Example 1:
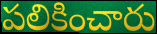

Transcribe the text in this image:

పలికించారు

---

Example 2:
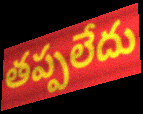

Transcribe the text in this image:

తప్పలేదు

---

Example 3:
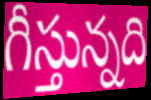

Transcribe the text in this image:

గీస్తున్నది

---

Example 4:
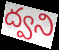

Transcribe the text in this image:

ద్వని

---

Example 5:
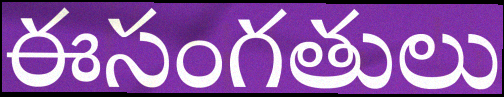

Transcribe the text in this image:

ఈసంగతులు